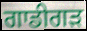
ਗਾਡੀਗੜ